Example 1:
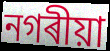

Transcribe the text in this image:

নগৰীয়া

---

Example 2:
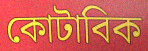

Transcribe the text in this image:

কোটাবিক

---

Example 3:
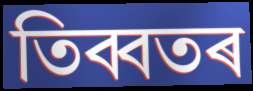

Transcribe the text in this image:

তিব্বতৰ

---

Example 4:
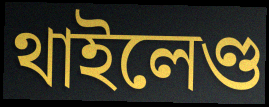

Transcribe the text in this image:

থাইলেণ্ড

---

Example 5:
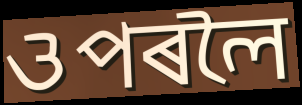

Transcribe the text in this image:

ওপৰলৈ